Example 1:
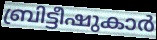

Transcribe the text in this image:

ബ്രിട്ടീഷുകാർ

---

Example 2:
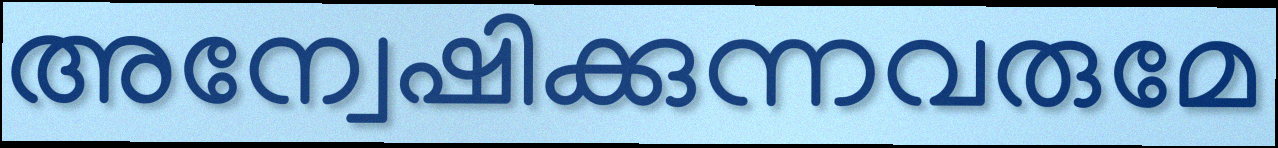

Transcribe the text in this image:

അന്വേഷിക്കുന്നവരുമേ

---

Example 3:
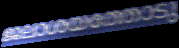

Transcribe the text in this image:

ജലാശയത്തോടു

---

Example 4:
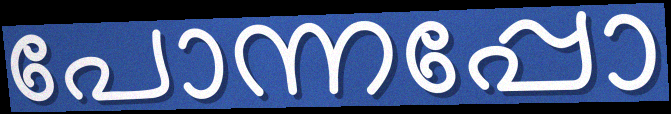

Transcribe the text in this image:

പോന്നപ്പോ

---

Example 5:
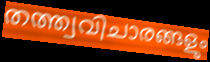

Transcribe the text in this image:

തത്ത്വവിചാരങ്ങളും